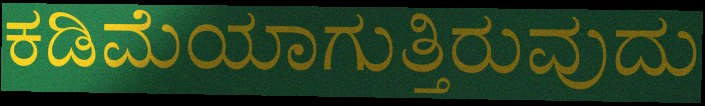
ಕಡಿಮೆಯಾಗುತ್ತಿರುವುದು